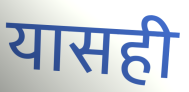
यासही